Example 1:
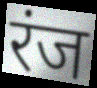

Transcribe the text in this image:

रंज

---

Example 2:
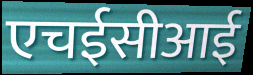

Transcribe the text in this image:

एचईसीआई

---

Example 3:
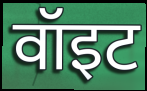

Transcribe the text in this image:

वॉइट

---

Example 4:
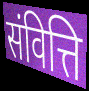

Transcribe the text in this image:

संवित्ति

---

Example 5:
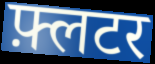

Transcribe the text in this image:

फ़्लटर